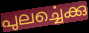
പുലൎച്ചെക്കു